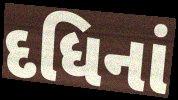
દધિનાં